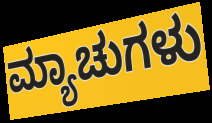
ಮ್ಯಾಚುಗಳು